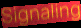
Signaling